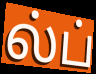
ல்ப்